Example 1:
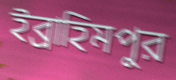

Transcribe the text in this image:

ইব্রাহিমপুর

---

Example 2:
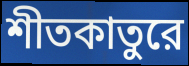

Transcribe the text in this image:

শীতকাতুরে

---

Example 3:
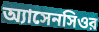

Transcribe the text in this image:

অ্যাসেনসিওর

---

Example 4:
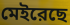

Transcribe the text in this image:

মেইরেছে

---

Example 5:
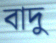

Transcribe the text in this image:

বাদু